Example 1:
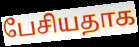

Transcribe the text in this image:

பேசியதாக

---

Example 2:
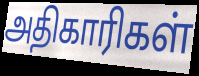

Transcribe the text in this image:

அதிகாரிகள்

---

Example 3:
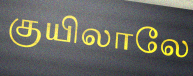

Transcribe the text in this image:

குயிலாலே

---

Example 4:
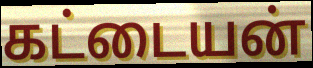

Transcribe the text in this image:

கட்டையன்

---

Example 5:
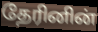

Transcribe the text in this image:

தேரினின்